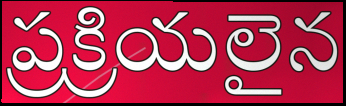
ప్రక్రియలైన